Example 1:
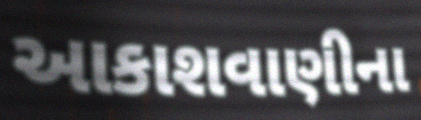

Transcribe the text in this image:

આકાશવાણીના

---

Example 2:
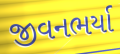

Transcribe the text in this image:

જીવનભર્યા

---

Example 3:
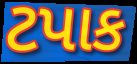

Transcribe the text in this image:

ટપાક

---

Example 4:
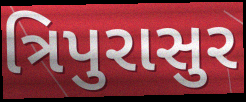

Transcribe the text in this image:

ત્રિપુરાસુર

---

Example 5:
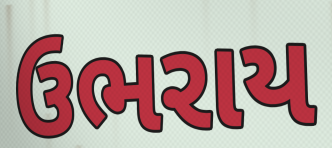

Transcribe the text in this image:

ઉભરાય